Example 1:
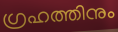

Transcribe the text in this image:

ഗ്രഹത്തിനും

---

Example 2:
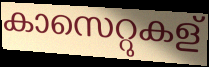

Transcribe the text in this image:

കാസെറ്റുകള്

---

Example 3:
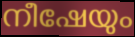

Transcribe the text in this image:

നീഷേയും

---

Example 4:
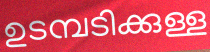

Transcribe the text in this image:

ഉടമ്പടിക്കുള്ള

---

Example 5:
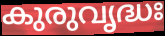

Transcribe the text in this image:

കുരുവൃദ്ധഃ